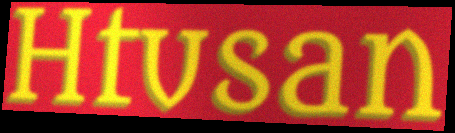
Htusan